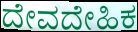
ದೇವದೇಹಿಕ